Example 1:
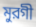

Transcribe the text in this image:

মুরগী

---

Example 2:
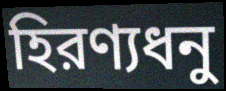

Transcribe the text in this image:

হিরণ্যধনু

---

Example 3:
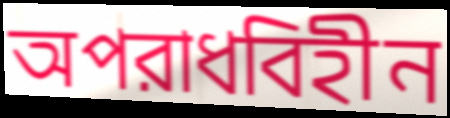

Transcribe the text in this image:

অপরাধবিহীন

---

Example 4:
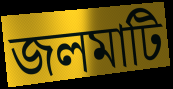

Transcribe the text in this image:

জলমাটি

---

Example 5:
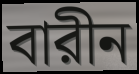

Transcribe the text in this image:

বারীন